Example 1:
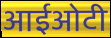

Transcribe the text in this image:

आईओटी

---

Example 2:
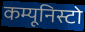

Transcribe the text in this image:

कम्यूनिस्टो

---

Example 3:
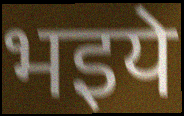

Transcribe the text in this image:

भइये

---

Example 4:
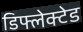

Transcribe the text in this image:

डिफ्लेक्टेड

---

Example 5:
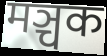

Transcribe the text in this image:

मञ्चक